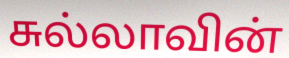
சுல்லாவின்